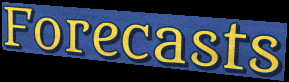
Forecasts